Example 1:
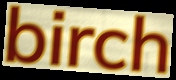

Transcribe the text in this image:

birch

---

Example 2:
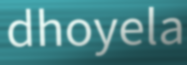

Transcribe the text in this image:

dhoyela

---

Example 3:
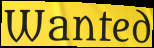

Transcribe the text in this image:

Wanted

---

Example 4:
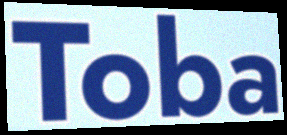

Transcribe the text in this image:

Toba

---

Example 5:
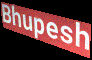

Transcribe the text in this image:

Bhupesh